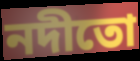
নদীতো